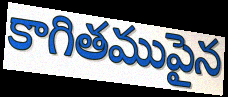
కాగితముపైన